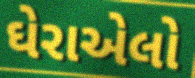
ઘેરાએલો